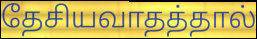
தேசியவாதத்தால்